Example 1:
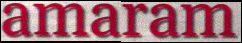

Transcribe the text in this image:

amaram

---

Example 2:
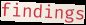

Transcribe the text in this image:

findings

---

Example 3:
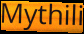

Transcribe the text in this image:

Mythili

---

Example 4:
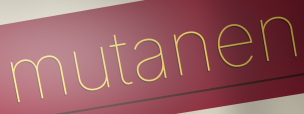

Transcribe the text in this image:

mutanen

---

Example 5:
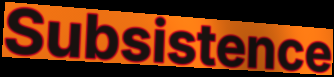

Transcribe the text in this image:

Subsistence